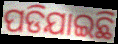
ପଡିଯାଇଛି